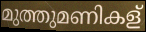
മുത്തുമണികള്